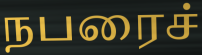
நபரைச்